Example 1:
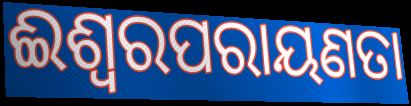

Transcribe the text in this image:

ଈଶ୍ୱରପରାୟଣତା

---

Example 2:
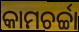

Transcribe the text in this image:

କାମଚର୍ଚ୍ଚା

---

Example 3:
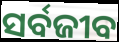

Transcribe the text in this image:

ସର୍ବଜୀବ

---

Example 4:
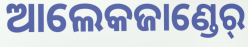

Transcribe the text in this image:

ଆଲେକଜାଣ୍ଡେର୍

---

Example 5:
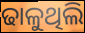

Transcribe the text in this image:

ଢାଳୁଥିଲି